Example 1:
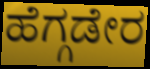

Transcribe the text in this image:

ಹೆಗ್ಗಡೇರ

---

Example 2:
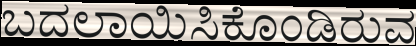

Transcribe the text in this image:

ಬದಲಾಯಿಸಿಕೊಂಡಿರುವ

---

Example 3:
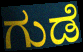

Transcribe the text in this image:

ಗುಡೆ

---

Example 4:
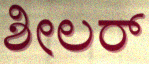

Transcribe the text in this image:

ಶೀಲರ್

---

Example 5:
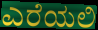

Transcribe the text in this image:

ಎರೆಯಲಿ